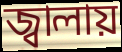
জ্বালায়